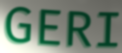
GERI